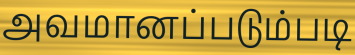
அவமானப்படும்படி